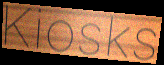
Kiosks